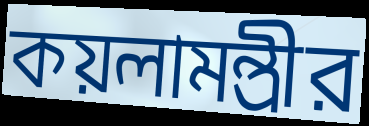
কয়লামন্ত্রীর